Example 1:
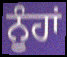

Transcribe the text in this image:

ਨੂੰਹਾਂ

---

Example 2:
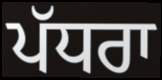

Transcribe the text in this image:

ਪੱਧਰਾ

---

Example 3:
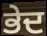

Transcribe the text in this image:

ਭੇਦ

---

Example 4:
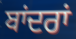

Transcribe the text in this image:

ਬਾਂਦਰਾਂ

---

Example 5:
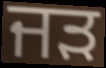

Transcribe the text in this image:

ਜੜ